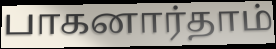
பாகனார்தாம்